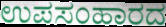
ಉಪಸಂಹಾರದ